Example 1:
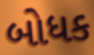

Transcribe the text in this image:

બોધક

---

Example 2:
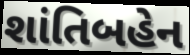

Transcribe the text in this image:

શાંતિબહેન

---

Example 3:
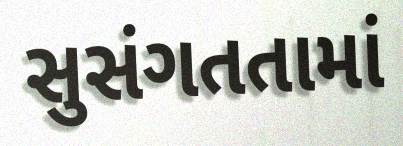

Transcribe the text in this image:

સુસંગતતામાં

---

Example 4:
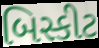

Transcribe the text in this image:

બિસ્કીટ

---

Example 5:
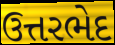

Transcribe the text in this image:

ઉત્તરભેદ